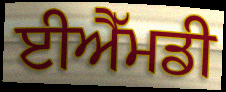
ਈਐੱਮਡੀ